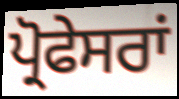
ਪ੍ਰੋਫੇਸਰਾਂ